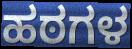
ಹಠಗಳ